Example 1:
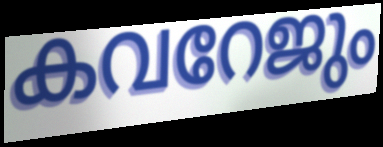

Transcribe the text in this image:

കവറേജും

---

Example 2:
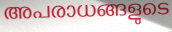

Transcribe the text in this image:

അപരാധങ്ങളുടെ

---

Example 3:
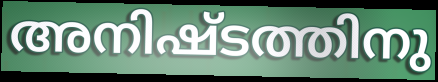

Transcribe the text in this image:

അനിഷ്ടത്തിനു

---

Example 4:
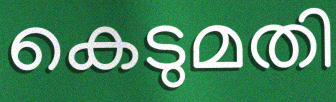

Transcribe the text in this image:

കെടുമതി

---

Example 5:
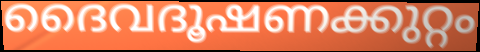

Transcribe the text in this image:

ദൈവദൂഷണക്കുറ്റം